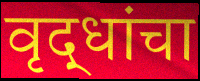
वृद्धांचा